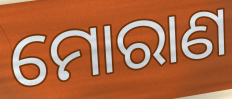
ମୋରାଣ